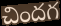
చిందగ